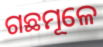
ଗଛମୂଳେ